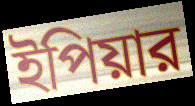
ইপিয়ার